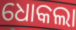
ଧୋକଲା